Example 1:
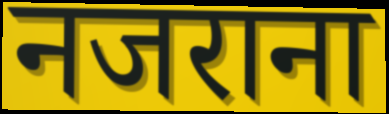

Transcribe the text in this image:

नजराना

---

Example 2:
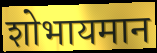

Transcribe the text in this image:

शोभायमान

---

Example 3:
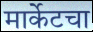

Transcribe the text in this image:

मार्केटचा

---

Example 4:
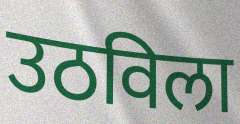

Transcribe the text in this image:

उठविला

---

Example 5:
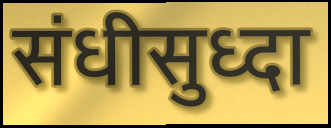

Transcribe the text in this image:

संधीसुध्दा